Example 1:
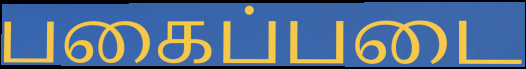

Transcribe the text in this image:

பகைப்படை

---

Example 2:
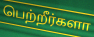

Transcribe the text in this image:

பெற்றீர்களா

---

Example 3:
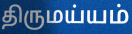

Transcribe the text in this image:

திருமய்யம்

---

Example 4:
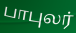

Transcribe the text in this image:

பாபுலர்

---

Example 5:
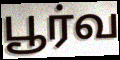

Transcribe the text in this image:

பூர்வ